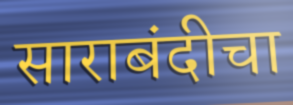
साराबंदीचा